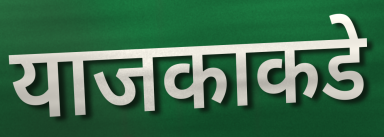
याजकाकडे